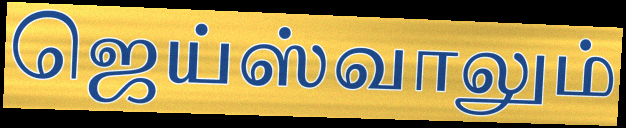
ஜெய்ஸ்வாலும்